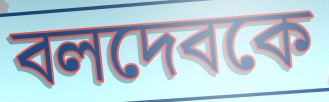
বলদেবকে